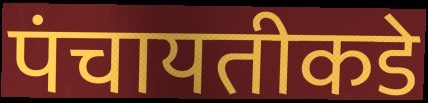
पंचायतीकडे